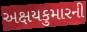
અક્ષયકુમારની